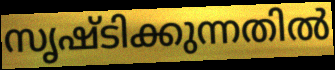
സൃഷ്ടിക്കുന്നതിൽ